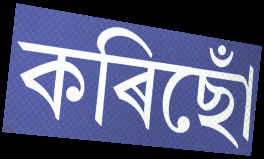
কৰিছোঁ